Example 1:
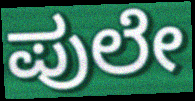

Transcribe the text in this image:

ಪುಲೇ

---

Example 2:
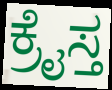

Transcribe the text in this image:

ಕ್ರೈಸ್ತ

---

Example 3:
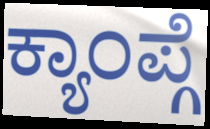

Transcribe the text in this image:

ಕ್ಯಾಂಪ್ಗೆ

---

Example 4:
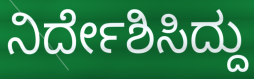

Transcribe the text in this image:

ನಿರ್ದೇಶಿಸಿದ್ದು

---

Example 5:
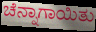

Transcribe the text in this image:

ಚೆನ್ನಾಗಾಯಿತು